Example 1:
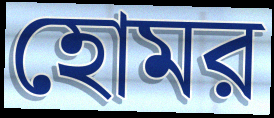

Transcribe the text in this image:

হোমর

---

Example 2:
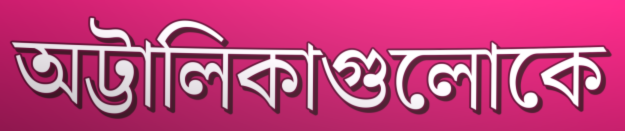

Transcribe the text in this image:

অট্টালিকাগুলোকে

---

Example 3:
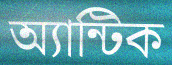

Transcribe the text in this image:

অ্যান্টিক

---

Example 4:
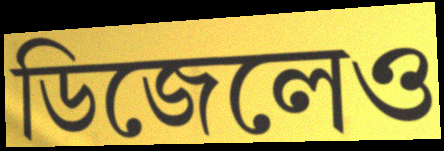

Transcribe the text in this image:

ডিজেলেও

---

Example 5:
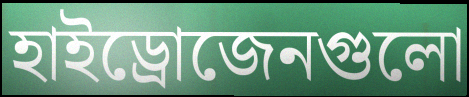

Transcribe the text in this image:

হাইড্রোজেনগুলো